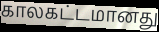
காலகட்டமானது